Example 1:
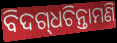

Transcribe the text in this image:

ବିଦଗ୍‌ଧଚିନ୍ତାମଣି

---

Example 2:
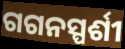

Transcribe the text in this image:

ଗଗନସ୍ପର୍ଶୀ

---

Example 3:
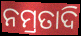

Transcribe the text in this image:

ନମ୍ରତାଦି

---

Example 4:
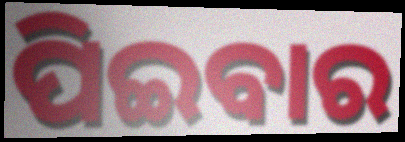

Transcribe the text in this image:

ପିଇବାର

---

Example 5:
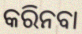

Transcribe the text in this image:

କରିନବା